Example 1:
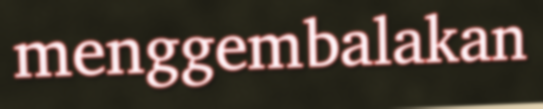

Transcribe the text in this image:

menggembalakan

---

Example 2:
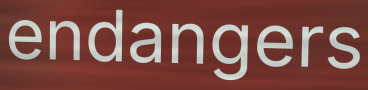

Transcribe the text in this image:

endangers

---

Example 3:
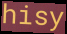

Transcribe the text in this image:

hisy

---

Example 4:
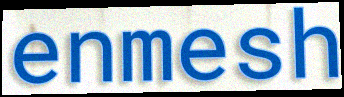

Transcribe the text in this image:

enmesh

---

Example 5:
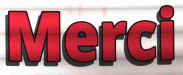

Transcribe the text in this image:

Merci